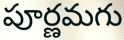
పూర్ణమగు